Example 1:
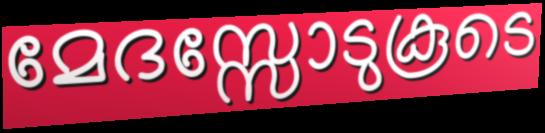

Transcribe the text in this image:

മേദസ്സോടുകൂടെ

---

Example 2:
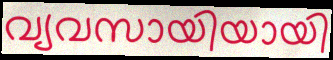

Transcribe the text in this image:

വ്യവസായിയായി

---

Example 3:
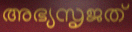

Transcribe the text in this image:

അഭ്യസൃജത്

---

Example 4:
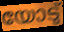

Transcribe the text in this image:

യോടു്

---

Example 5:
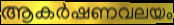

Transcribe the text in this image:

ആകർഷണവലയം